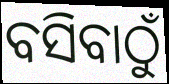
ବସିବାଠୁଁ